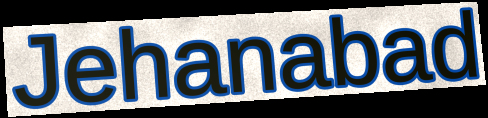
Jehanabad